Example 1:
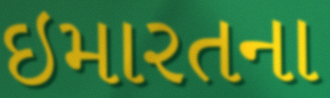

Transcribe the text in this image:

ઇમારતના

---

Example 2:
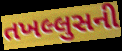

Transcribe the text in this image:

તખલ્લુસની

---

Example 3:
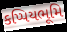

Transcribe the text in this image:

કપ્પિયભૂમિ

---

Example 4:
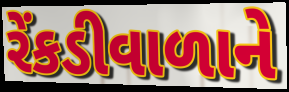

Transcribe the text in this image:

રેંકડીવાળાને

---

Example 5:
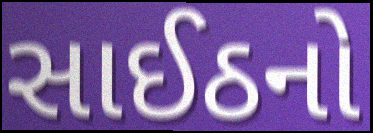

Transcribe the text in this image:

સાઈઠનો